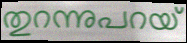
തുറന്നുപറയ്